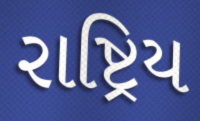
રાષ્ટ્રિય